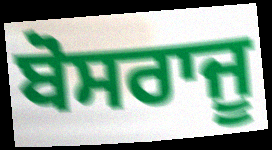
ਬੋਸਰਾਜੂ